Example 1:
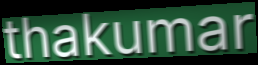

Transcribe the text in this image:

thakumar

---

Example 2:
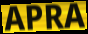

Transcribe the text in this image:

APRA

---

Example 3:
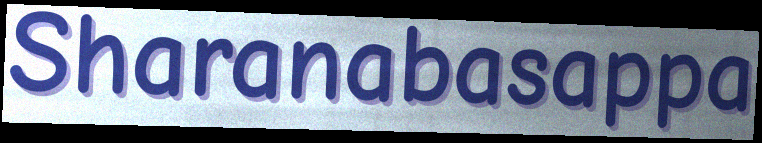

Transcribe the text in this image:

Sharanabasappa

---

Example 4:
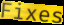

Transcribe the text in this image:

Fixes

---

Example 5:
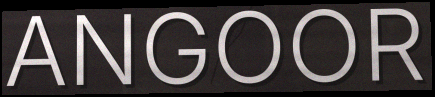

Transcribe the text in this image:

ANGOOR